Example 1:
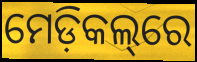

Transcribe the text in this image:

ମେଡ଼ିକଲ୍‌ରେ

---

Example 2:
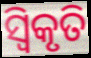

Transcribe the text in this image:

ସ୍ୱିକୃତି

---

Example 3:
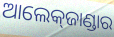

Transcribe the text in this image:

ଆଲେକ୍‌ଜାଣ୍ଡାର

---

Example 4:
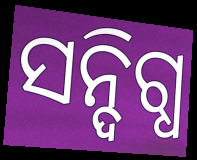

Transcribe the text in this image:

ସନ୍ଦିଗ୍ଧ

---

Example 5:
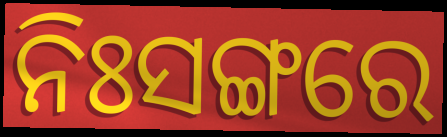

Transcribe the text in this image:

ନିଃସଙ୍ଗରେ